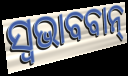
ସ୍ଵଭାବବାନ୍